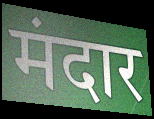
मंदार